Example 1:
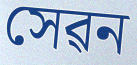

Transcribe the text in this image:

সেৱন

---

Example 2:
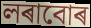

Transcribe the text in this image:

লৰাবোৰ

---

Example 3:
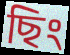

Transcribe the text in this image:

ছিং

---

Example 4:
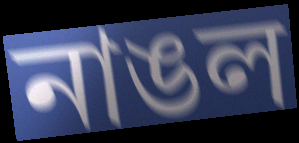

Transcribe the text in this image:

নাঙল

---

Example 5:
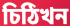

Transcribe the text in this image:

চিঠিখন